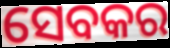
ସେବକର